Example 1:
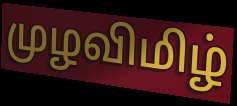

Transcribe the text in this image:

முழவிமிழ்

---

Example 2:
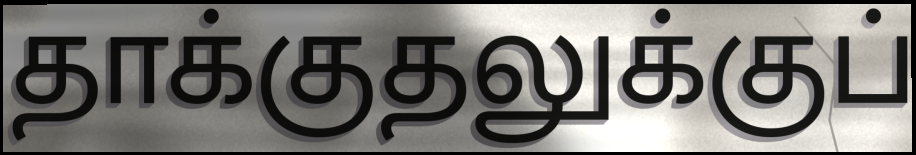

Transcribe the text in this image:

தாக்குதலுக்குப்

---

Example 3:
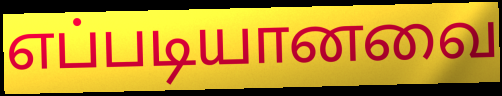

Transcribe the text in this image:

எப்படியானவை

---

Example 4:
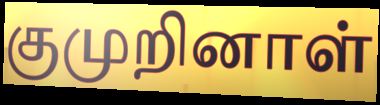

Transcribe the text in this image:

குமுறினாள்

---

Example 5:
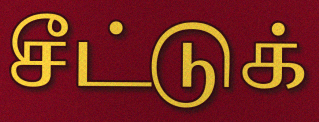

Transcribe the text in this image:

சீட்டுக்